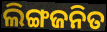
ଲିଙ୍ଗଜନିତ